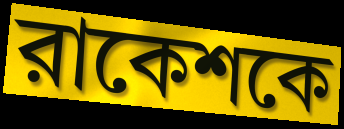
রাকেশকে